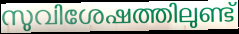
സുവിശേഷത്തിലുണ്ട്